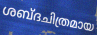
ശബ്ദചിത്രമായ